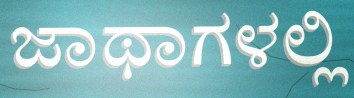
ಜಾಥಾಗಳಲ್ಲಿ